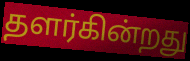
தளர்கின்றது